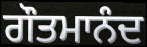
ਗੌਤਮਾਨੰਦ